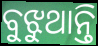
ବୁଝୁଥାନ୍ତି